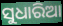
ସୁଧାରିଆ